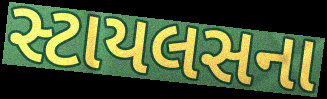
સ્ટાયલસના